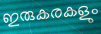
ഇരുകരകളും